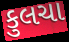
કુલચા